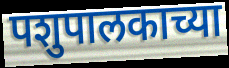
पशुपालकाच्या